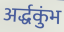
अर्द्धकुंभ